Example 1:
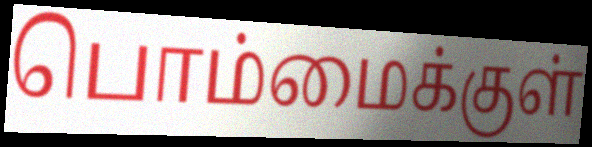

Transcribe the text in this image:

பொம்மைக்குள்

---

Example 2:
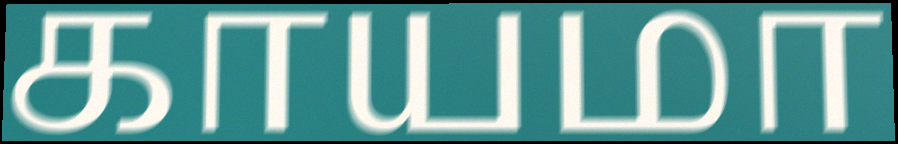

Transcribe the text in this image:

காயமா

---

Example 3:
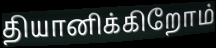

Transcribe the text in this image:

தியானிக்கிறோம்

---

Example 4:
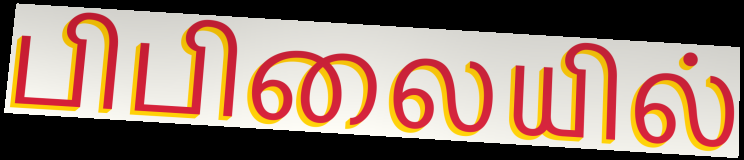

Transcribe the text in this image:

பிபிலையில்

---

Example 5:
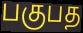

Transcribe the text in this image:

பகுபத